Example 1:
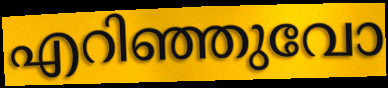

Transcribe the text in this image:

എറിഞ്ഞുവോ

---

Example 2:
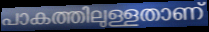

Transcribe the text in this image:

പാകത്തിലുള്ളതാണ്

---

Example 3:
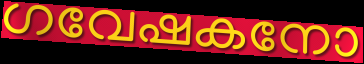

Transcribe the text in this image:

ഗവേഷകനോ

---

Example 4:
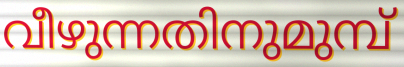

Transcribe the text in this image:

വീഴുന്നതിനുമുമ്പ്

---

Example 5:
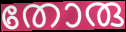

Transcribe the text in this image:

തോരു